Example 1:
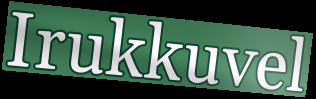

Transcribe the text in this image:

Irukkuvel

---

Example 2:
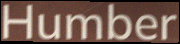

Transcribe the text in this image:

Humber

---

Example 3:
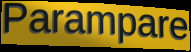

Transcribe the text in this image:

Parampare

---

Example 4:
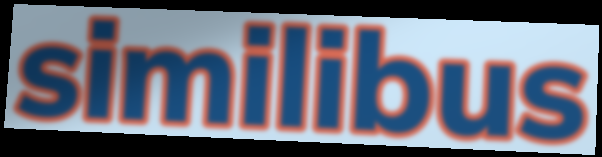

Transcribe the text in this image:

similibus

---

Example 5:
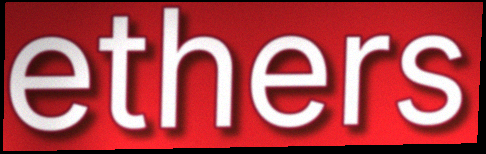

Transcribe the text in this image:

ethers